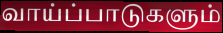
வாய்ப்பாடுகளும்